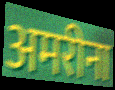
अमरीना